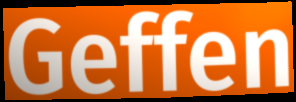
Geffen